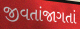
જીવતાંજાગતાં